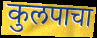
कुलपाचा